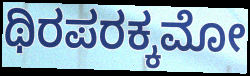
ಥಿರಪರಕ್ಕಮೋ